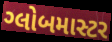
ગ્લોબમાસ્ટર